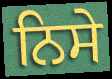
ਨਿਸੇ